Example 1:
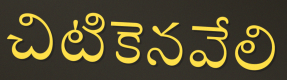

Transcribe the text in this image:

చిటికెనవేలి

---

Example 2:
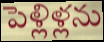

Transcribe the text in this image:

పెళ్లిళ్లను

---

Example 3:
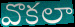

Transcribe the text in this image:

వొకలా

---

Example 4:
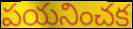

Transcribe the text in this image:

పయనించక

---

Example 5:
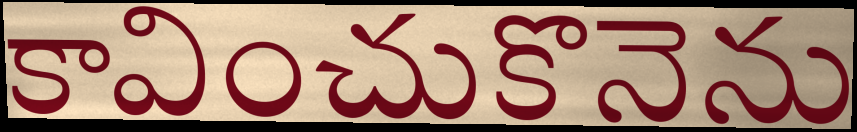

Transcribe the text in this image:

కావించుకొనెను